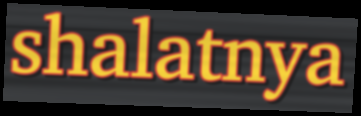
shalatnya